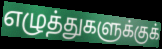
எழுத்துகளுக்குக்